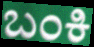
ಬಂಕಿ